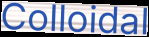
Colloidal